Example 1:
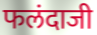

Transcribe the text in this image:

फलंदाजी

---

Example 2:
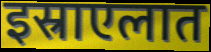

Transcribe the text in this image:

इस्राएलात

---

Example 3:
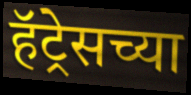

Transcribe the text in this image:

हॅट्रेसच्या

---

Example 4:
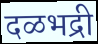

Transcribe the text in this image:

दळभद्री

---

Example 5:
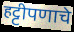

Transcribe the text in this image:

हट्टीपणाचे